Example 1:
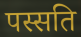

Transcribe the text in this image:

पस्सति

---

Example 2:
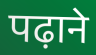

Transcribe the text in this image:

पढ़ाने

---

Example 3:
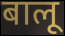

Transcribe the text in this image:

बालू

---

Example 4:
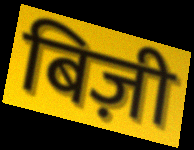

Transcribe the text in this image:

बिज़ी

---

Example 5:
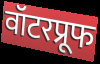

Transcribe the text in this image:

वॉटरप्रूफ